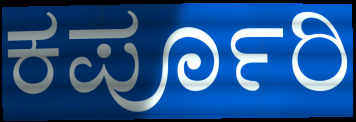
ಕರ್ಪೂರಿ